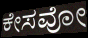
ಕೇಸವೋ